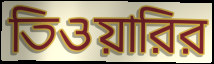
তিওয়ারির